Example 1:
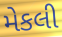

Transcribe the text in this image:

મેકલી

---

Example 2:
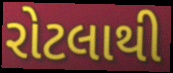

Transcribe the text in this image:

રોટલાથી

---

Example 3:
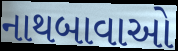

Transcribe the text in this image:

નાથબાવાઓ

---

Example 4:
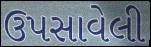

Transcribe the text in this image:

ઉપસાવેલી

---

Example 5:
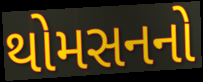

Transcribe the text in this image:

થોમસનનો